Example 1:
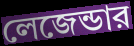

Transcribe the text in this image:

লেজেন্ডার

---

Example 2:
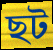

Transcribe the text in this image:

ছট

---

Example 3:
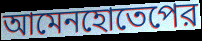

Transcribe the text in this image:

আমেনহোতেপের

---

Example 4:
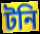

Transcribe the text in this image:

টনি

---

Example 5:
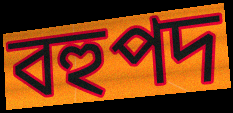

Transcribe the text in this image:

বহুপদ